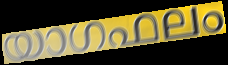
യാഗഫലം